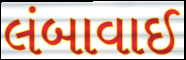
લંબાવાઈ